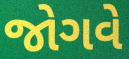
જોગવે